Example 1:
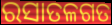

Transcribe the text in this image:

ରସାତଳଗତ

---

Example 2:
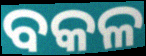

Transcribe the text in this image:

ବକଳ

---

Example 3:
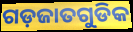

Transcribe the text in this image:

ଗଡ଼ଜାତଗୁଡିକ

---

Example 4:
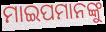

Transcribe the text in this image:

ମାଇପମାନଙ୍କୁ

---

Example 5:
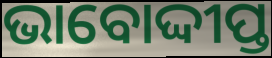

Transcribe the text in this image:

ଭାବୋଦ୍ଦୀପ୍ତ